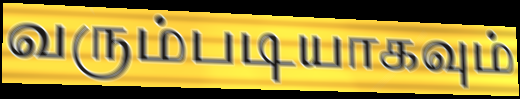
வரும்படியாகவும்